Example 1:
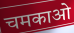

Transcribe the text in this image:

चमकाओ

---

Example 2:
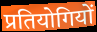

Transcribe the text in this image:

प्रतियोगियों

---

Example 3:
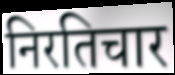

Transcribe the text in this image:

निरतिचार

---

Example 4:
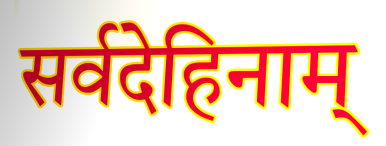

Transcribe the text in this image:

सर्वदेहिनाम्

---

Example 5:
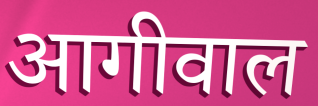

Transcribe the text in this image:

आगीवाल